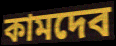
কামদেব